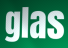
glas